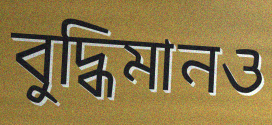
বুদ্ধিমানও